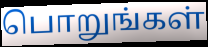
பொறுங்கள்